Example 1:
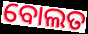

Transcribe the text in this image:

ବୋଲତ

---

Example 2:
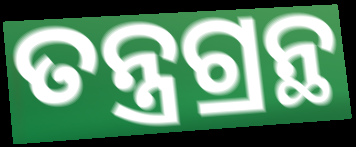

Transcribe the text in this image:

ତନ୍ତ୍ରଗ୍ରନ୍ଥ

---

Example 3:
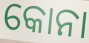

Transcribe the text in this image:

କୋନା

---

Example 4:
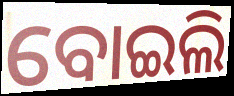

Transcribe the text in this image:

ବୋଇଲି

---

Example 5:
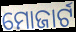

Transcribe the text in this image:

ମୋଜାର୍ଟ